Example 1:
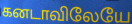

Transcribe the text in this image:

கனடாவிலேயே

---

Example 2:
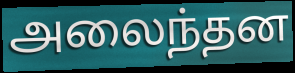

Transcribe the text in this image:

அலைந்தன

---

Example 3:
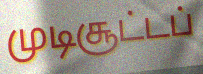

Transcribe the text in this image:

முடிசூட்டப்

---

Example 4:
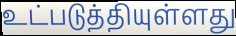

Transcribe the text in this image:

உட்படுத்தியுள்ளது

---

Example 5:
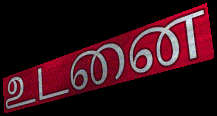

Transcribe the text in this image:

உடனை